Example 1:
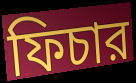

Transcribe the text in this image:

ফিচার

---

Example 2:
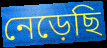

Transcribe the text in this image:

নেড়েছি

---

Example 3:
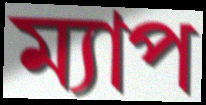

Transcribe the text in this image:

ম্যাপ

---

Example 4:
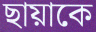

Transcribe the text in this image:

ছায়াকে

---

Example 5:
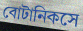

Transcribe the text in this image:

বোটানিকসে